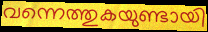
വന്നെത്തുകയുണ്ടായി